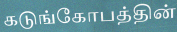
கடுங்கோபத்தின்